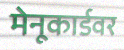
मेनूकार्डवर